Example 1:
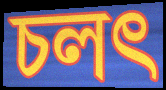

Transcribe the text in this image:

চলৎ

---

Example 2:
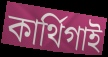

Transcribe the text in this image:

কার্থিগাই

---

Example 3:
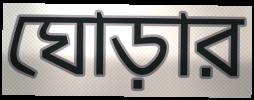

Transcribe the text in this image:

ঘোড়ার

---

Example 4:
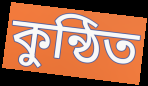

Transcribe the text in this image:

কুন্ঠিত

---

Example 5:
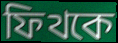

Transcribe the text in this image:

ফিথকে